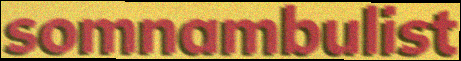
somnambulist